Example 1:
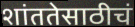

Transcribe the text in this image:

शांततेसाठीचं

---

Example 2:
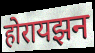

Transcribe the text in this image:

होरायझन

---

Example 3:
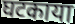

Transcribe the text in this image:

घटकाया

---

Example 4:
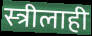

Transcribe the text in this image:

स्त्रीलाही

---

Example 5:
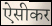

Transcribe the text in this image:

ऐसीकर